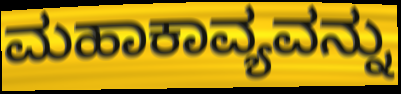
ಮಹಾಕಾವ್ಯವನ್ನು